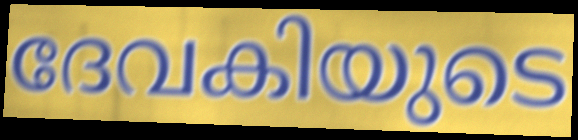
ദേവകിയുടെ